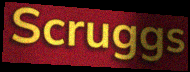
Scruggs